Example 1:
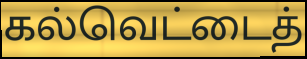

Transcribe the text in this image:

கல்வெட்டைத்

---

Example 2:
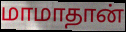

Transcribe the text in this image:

மாமாதான்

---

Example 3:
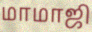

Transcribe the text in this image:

மாமாஜி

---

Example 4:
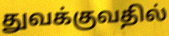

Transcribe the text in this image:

துவக்குவதில்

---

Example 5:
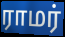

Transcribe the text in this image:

ராமர்